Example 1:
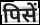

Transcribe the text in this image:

पिसें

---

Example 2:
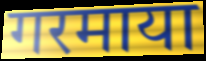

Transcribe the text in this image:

गरमाया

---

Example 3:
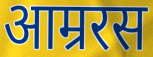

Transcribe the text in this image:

आम्ररस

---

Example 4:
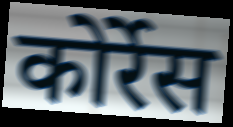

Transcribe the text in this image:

कोर्रेस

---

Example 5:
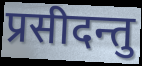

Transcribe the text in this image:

प्रसीदन्तु